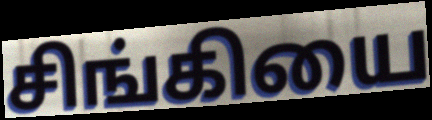
சிங்கியை